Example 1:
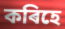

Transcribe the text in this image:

কৰিহে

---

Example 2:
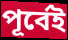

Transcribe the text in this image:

পূৰ্বেই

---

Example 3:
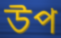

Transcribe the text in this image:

উপ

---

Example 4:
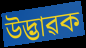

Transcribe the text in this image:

উদ্ভাৱক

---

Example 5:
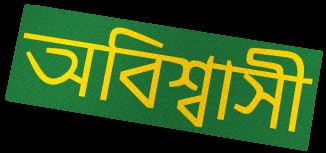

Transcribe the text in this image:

অবিশ্বাসী